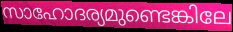
സാഹോദര്യമുണ്ടെങ്കിലേ